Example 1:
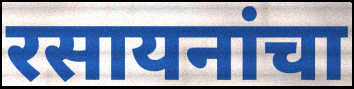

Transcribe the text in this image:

रसायनांचा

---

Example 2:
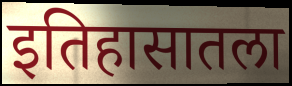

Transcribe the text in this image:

इतिहासातला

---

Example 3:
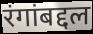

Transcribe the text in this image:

रंगांबद्दल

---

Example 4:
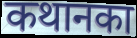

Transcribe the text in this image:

कथानका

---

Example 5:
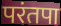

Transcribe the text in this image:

परंतपा